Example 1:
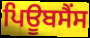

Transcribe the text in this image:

ਪਿਊਬਸੈਂਸ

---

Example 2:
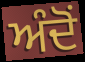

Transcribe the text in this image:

ਅੰਦੋਂ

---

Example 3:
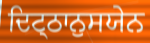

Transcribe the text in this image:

ਦਿਟ੍ਠਾਨੁਸਯੇਨ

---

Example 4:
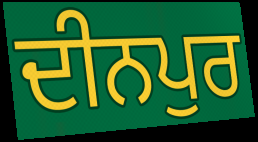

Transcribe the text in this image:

ਦੀਨਪੁਰ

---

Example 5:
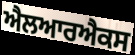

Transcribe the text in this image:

ਐਲਆਰਐਕਸ